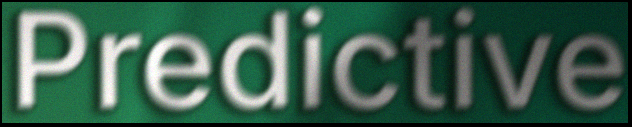
Predictive